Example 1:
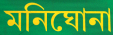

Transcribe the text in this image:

মনিঘোনা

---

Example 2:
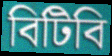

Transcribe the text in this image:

বিটিবি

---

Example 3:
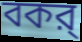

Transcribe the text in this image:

বকর্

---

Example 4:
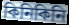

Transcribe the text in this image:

কিনিকিনি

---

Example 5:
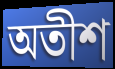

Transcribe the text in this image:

অতীশ